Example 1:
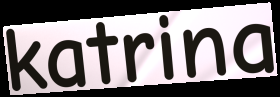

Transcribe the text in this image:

katrina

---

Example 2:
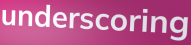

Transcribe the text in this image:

underscoring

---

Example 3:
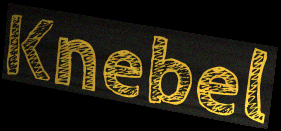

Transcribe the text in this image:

Knebel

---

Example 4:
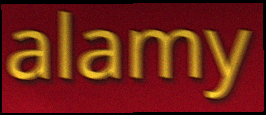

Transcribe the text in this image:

alamy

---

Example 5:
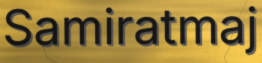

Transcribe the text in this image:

Samiratmaj